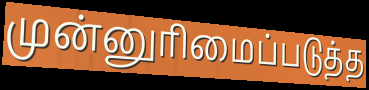
முன்னுரிமைப்படுத்த